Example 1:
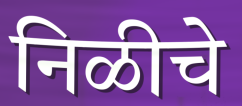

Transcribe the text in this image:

निळीचे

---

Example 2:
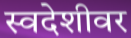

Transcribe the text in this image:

स्वदेशीवर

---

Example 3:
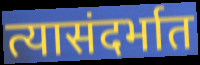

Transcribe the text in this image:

त्यासंदर्भात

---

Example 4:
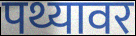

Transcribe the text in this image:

पथ्यावर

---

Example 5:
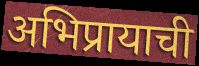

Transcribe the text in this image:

अभिप्रायाची